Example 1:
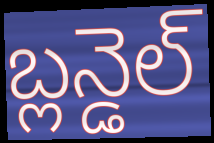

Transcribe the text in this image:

బ్లన్డెల్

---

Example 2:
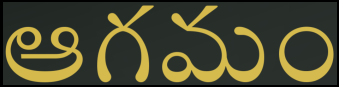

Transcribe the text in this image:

ఆగమం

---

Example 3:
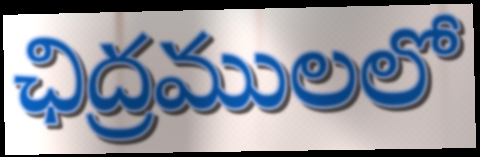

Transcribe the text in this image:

ఛిద్రములలో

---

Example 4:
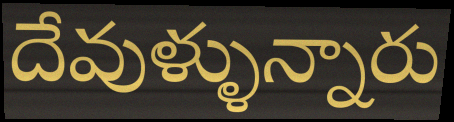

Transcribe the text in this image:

దేవుళ్ళున్నారు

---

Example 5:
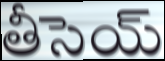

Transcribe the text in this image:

తీసెయ్